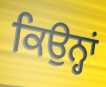
ਕਿਉਨ੍ਹਾਂ